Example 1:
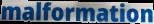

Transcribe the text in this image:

malformation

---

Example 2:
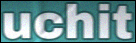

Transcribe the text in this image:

uchit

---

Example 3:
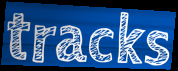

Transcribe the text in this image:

tracks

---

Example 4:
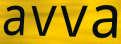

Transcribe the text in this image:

avva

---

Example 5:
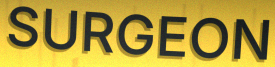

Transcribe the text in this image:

SURGEON